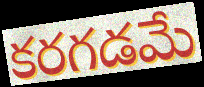
కరగడమే